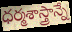
ధర్మశాస్త్రాన్నే